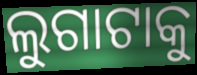
ଲୁଗାଟାକୁ